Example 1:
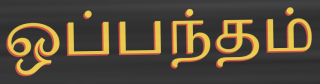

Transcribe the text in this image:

ஒப்பந்தம்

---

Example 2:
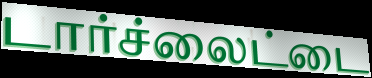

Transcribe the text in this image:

டார்ச்லைட்டை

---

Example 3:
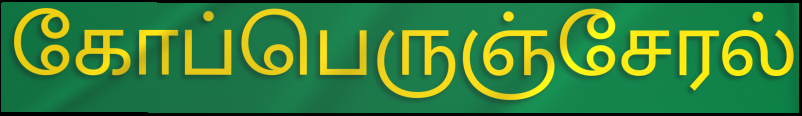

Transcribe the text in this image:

கோப்பெருஞ்சேரல்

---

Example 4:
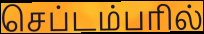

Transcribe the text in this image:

செப்டம்பரில்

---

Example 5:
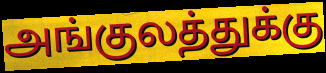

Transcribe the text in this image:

அங்குலத்துக்கு